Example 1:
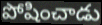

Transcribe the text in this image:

పోషించాడు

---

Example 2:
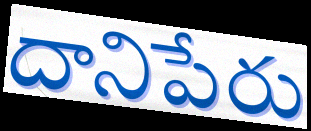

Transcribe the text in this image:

దానిపేరు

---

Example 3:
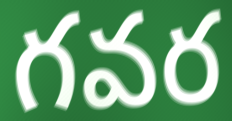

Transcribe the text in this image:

గవర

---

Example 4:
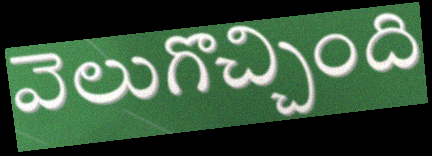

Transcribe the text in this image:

వెలుగొచ్చింది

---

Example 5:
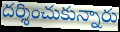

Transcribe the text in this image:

దర్శించుకున్నారు